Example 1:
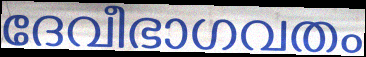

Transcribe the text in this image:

ദേവീഭാഗവതം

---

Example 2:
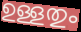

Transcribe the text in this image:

ഉള്ളതും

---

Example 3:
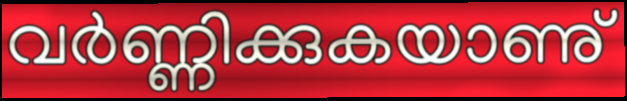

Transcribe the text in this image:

വർണ്ണിക്കുകയാണു്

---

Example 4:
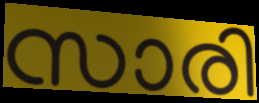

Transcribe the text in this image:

സാരി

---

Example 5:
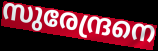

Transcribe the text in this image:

സുരേന്ദ്രനെ